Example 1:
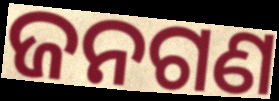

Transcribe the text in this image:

ଜନଗଣ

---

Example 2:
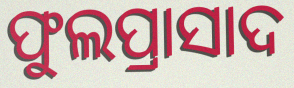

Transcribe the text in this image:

ଫୁଲପ୍ରାସାଦ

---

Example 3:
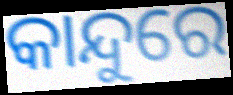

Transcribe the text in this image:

କାନ୍ଦୁରେ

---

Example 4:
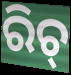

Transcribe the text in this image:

ରିଚ୍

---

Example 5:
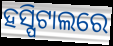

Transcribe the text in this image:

ହସ୍ପିଟାଲରେ